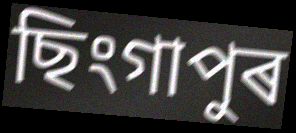
ছিংগাপুৰ